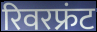
रिवरफ्रंट